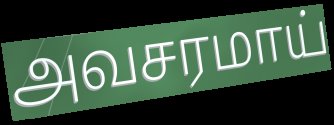
அவசரமாய்